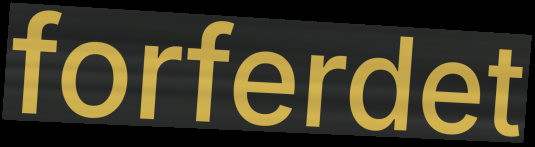
forferdet